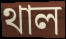
থাল